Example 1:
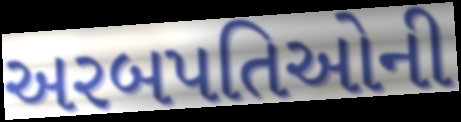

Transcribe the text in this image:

અરબપતિઓની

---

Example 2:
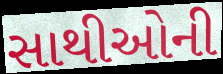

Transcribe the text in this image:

સાથીઓની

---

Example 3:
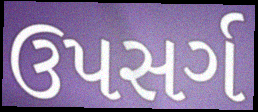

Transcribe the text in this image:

ઉપસર્ગ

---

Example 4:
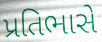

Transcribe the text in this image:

પ્રતિભાસે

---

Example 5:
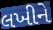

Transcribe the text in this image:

લખીને